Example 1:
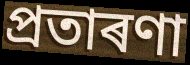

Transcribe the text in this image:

প্ৰতাৰণা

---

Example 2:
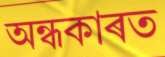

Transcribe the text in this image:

অন্ধকাৰত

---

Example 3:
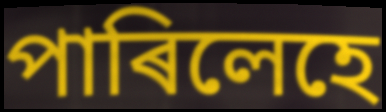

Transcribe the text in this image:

পাৰিলেহে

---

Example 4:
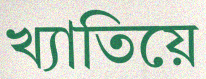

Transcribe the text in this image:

খ্যাতিয়ে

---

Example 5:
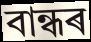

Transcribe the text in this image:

বান্ধৰ